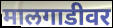
मालगाडीवर